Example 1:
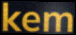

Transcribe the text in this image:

kem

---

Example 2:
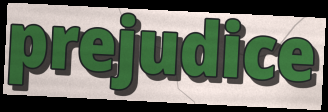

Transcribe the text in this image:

prejudice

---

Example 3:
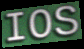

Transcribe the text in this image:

IOS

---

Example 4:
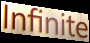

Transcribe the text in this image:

Infinite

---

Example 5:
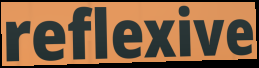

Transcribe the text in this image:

reflexive